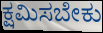
ಕ್ಷಮಿಸಬೇಕು